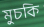
মুচকি